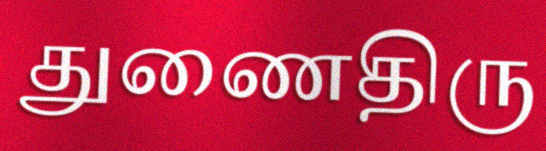
துணைதிரு